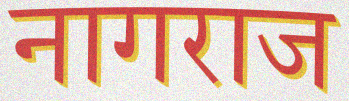
नागराज